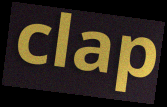
clap